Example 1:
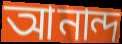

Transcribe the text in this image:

আনান্দ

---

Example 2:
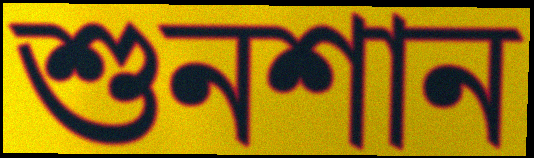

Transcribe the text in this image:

শুনশান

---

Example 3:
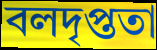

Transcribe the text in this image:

বলদৃপ্ততা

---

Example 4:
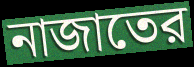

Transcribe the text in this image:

নাজাতের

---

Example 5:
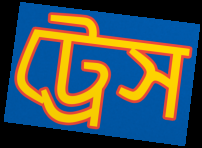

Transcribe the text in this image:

ট্রেস